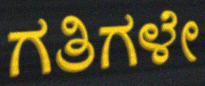
ಗತಿಗಳೇ